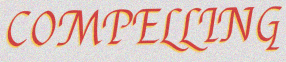
COMPELLING